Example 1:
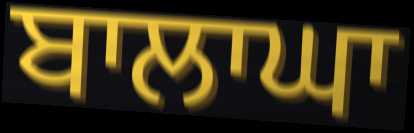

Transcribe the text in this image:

ਬਾਲਾਘਾ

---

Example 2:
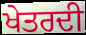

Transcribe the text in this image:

ਖੇਤਰਦੀ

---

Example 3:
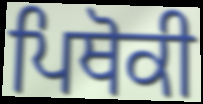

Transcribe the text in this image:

ਪਿਥੋਕੀ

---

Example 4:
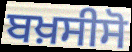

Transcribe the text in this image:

ਬਖ਼ਸੀਸੋ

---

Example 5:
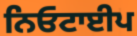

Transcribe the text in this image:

ਨਿਓਟਾਈਪ